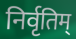
निर्वृतिम्